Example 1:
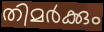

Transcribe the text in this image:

തിമർക്കും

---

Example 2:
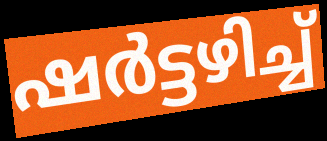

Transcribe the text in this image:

ഷർട്ടഴിച്ച്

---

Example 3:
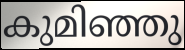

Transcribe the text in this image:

കുമിഞ്ഞു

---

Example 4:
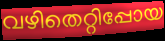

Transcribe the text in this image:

വഴിതെറ്റിപ്പോയ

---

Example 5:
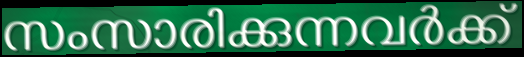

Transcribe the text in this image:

സംസാരിക്കുന്നവർക്ക്